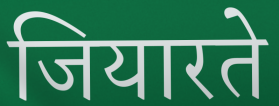
जियारते